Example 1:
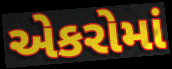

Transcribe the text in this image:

એકરોમાં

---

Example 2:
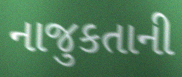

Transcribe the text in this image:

નાજુકતાની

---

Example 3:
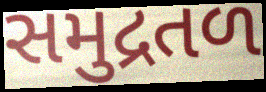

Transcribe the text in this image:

સમુદ્રતળ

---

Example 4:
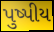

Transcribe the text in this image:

પુષ્પીય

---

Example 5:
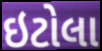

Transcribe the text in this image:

ઇટોલા